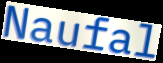
Naufal